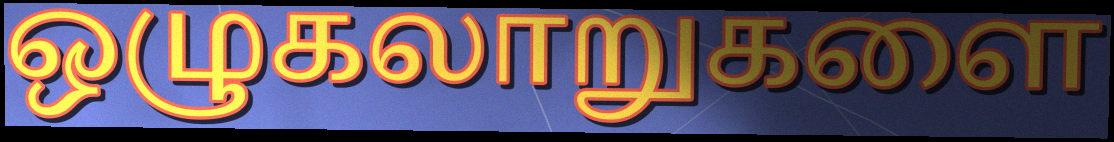
ஒழுகலாறுகளை